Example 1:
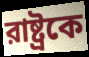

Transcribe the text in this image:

রাষ্ট্রকে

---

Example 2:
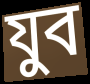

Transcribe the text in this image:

যুব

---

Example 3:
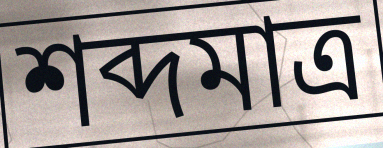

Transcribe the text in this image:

শব্দমাত্র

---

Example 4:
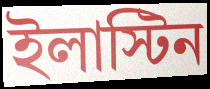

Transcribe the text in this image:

ইলাস্টিন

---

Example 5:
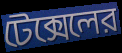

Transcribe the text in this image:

টেক্সেলের